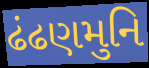
ઢંઢણમુનિ